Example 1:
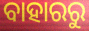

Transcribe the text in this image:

ବାହାରରୁ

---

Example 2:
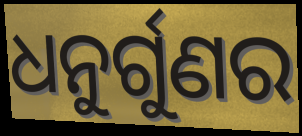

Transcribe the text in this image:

ଧନୁର୍ଗୁଣର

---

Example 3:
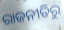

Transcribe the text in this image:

ରାଜନୀତିରୁ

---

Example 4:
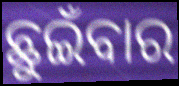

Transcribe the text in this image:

ଛୁଇଁବାର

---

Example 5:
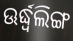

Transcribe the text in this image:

ଊର୍ଦ୍ଧ୍ୱଲିଙ୍ଗ